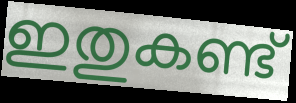
ഇതുകണ്ട്